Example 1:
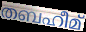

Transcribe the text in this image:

തബഹീമ്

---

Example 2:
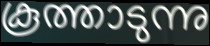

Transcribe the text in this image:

കൂത്താടുന്നു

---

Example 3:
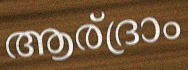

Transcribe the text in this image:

ആര്ദ്രാം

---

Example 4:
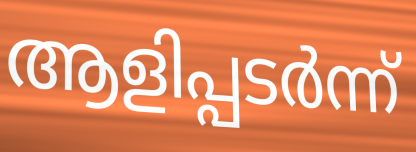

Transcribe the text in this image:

ആളിപ്പടർന്ന്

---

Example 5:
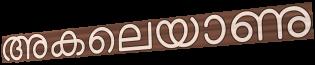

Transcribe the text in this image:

അകലെയാണു